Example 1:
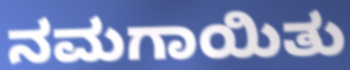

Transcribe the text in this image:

ನಮಗಾಯಿತು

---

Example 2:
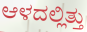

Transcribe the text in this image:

ಆಳದಲ್ಲಿತ್ತು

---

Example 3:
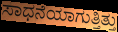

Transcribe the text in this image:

ಸಾಧನೆಯಾಗುತ್ತಿತ್ತು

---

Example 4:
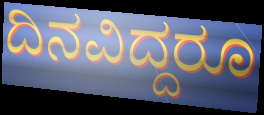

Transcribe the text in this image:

ದಿನವಿದ್ದರೂ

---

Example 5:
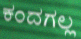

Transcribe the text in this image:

ಕಂದಗಲ್ಲ